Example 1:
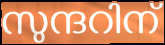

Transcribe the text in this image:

സുന്ദറിന്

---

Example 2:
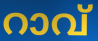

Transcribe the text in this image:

റാവ്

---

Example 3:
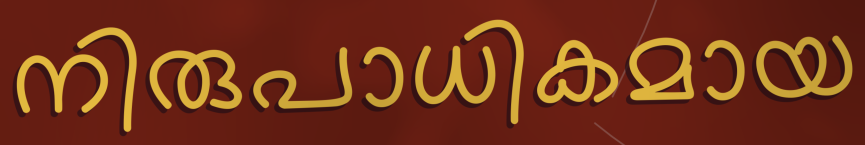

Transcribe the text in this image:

നിരുപാധികമായ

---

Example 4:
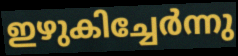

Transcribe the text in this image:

ഇഴുകിച്ചേർന്നു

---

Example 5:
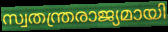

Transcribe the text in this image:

സ്വതന്ത്രരാജ്യമായി